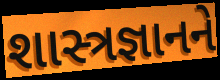
શાસ્ત્રજ્ઞાનને